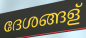
ദേശങ്ങള്